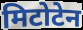
मिटोटेन